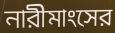
নারীমাংসের